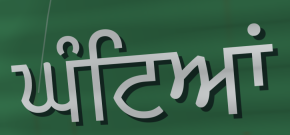
ਘੰਟਿਆਂ